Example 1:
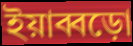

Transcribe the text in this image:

ইয়াব্বড়ো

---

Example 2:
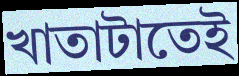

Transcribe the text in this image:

খাতাটাতেই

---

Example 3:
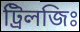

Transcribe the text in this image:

ট্রিলজিঃ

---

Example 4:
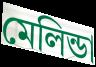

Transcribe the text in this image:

মেলিন্ডা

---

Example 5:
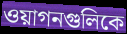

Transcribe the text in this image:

ওয়াগনগুলিকে